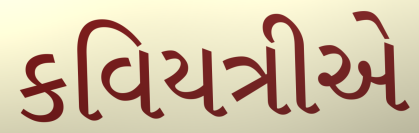
કવિયત્રીએ